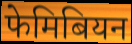
फेमिबियन